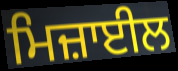
ਮਿਜ਼ਾਈਲ